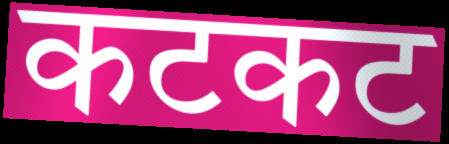
कटकट